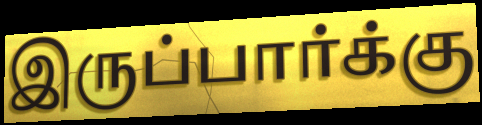
இருப்பார்க்கு